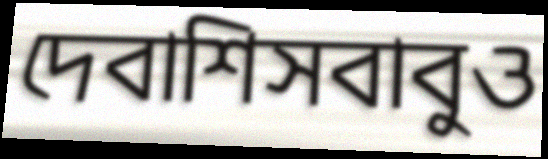
দেবাশিসবাবুও